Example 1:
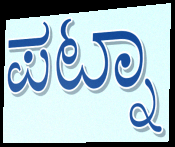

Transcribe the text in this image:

ಪಟ್ನಾ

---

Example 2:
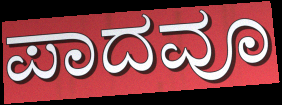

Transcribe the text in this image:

ಪಾದವೂ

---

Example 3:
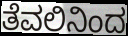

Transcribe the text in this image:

ತೆವಲಿನಿಂದ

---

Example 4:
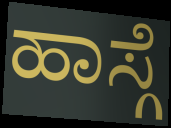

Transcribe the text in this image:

ಹಾಸ್ಗೆ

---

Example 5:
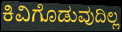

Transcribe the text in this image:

ಕಿವಿಗೊಡುವುದಿಲ್ಲ